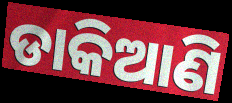
ଡାକିଆଣି